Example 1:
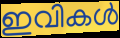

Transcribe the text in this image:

ഇവികൾ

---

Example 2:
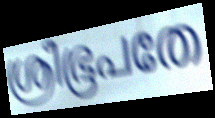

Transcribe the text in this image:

ശ്രീഭൂപതേ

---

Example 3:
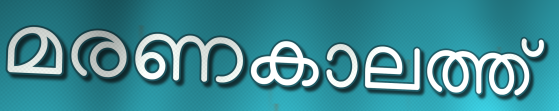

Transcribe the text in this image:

മരണകാലത്ത്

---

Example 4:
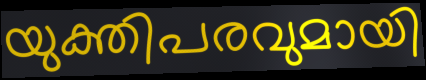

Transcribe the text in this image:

യുക്തിപരവുമായി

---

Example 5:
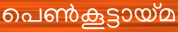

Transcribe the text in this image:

പെൺകൂട്ടായ്മ